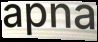
apna